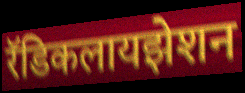
रॅडिकलायझेशन